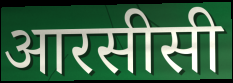
आरसीसी